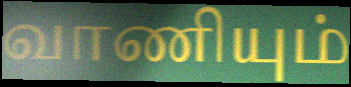
வாணியும்